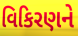
વિકિરણને